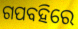
ଗପବହିରେ